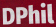
DPhil